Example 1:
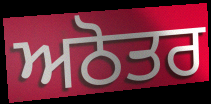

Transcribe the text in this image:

ਅਠੋਤਰ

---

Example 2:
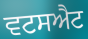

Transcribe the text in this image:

ਵਟਸਐਟ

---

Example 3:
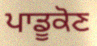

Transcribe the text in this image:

ਪਾਡੂਕੋਣ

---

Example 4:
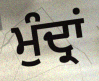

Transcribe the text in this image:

ਮੁੰਦ੍ਰਾਂ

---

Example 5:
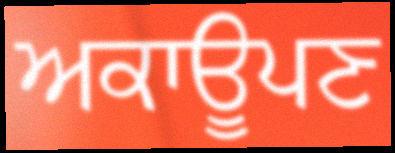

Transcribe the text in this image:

ਅਕਾਊਪਣ